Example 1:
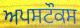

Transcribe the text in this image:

ਅਪਸਟੌਕਸ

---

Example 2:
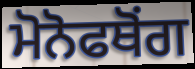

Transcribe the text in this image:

ਮੋਨੋਫਥੋਂਗ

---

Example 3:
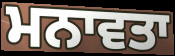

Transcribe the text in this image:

ਮਨਾਵਤਾ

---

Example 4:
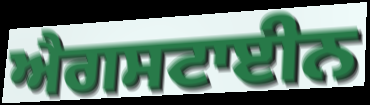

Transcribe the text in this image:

ਐਗਸਟਾਈਨ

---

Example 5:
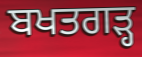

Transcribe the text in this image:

ਬਖਤਗੜ੍ਹ